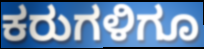
ಕರುಗಳಿಗೂ